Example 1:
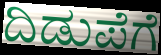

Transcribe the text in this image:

ದಿಡುಪೆಗೆ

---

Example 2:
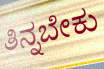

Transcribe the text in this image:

ತಿನ್ನಬೇಕು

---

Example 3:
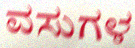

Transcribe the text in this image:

ವಸುಗಳ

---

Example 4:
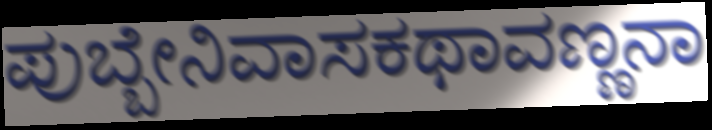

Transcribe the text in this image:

ಪುಬ್ಬೇನಿವಾಸಕಥಾವಣ್ಣನಾ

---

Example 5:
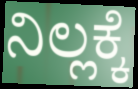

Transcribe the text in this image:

ನಿಲ್ಲಕ್ಕೆ